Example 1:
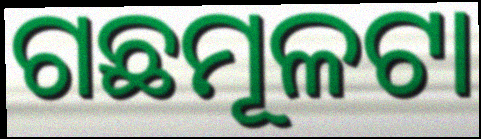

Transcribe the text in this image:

ଗଛମୂଳଟା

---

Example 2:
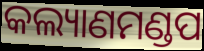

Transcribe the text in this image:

କଲ୍ୟାଣମଣ୍ଡପ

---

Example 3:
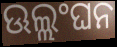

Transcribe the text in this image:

ଊଲ୍ଲଂଘନ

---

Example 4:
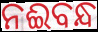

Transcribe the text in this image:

ନଈବନ୍ଧ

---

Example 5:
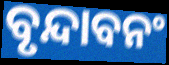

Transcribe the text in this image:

ବୃନ୍ଦାବନଂ